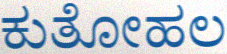
ಕುತೋಹಲ